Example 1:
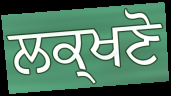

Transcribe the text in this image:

ਲਕ੍ਖਣੋ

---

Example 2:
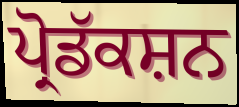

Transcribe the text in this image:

ਪ੍ਰੋਡੱਕਸ਼ਨ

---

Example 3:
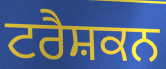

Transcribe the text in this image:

ਟਰੈਸ਼ਕਨ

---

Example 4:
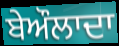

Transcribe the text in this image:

ਬੇਔਲਾਦਾ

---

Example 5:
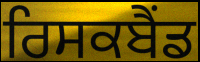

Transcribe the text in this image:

ਰਿਸਕਬੈਂਡ